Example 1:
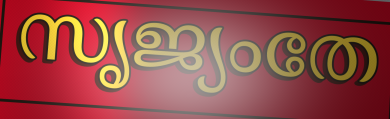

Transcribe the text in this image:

സൃജ്യംതേ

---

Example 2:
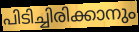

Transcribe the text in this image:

പിടിച്ചിരിക്കാനും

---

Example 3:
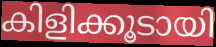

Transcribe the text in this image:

കിളിക്കൂടായി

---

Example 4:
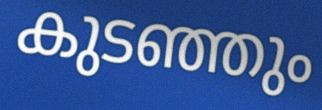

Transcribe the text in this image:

കുടഞ്ഞും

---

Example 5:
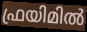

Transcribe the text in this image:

ഫ്രയിമിൽ